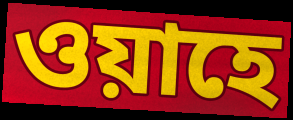
ওয়াহে